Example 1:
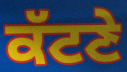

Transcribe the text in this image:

ਕੱਟਣੇ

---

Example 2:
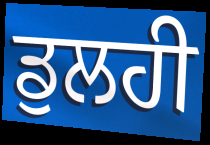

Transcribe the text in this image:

ਡੁਲਹੀ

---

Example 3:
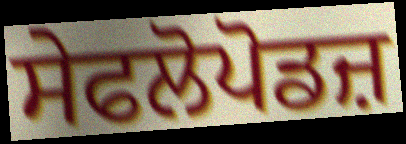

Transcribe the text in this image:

ਸੇਫਲੋਪੋਡਜ਼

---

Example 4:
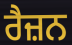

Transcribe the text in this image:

ਰੈਜ਼ਨ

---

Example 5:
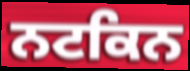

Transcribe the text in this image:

ਨਟਕਿਨ